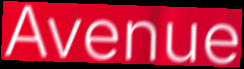
Avenue